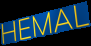
HEMAL